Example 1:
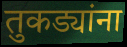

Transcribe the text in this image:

तुकड्यांना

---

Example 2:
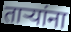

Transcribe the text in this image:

तार्‍यांना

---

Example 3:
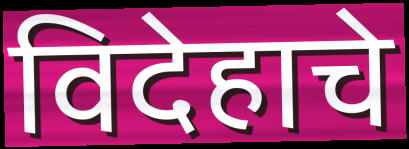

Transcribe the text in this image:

विदेहाचे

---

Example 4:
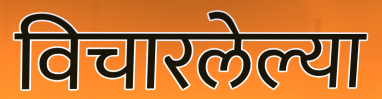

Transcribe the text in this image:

विचारलेल्या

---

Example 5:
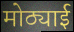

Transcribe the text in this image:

मोठ्याई